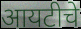
आयटीचे